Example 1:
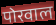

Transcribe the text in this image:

पोरवाल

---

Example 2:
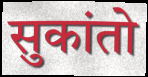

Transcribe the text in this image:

सुकांतो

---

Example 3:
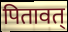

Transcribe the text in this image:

पितावत्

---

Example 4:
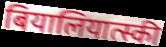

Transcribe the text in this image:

बियालियात्स्की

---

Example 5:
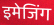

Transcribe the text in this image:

इमेजिंग